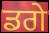
ਡਗੇ